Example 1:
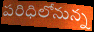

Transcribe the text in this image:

పరిధిలోనున్న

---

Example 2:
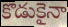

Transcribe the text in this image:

కొడుకైనా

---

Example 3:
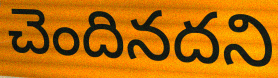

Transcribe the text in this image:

చెందినదని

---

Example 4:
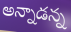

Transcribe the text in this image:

అన్నాడన్న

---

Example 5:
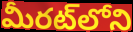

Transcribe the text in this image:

మీరట్‌లోని